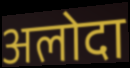
अलोदा